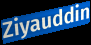
Ziyauddin